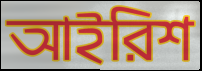
আইরিশ